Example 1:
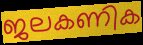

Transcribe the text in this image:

ജലകണിക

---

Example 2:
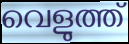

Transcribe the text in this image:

വെളുത്ത്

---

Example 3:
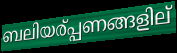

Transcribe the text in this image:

ബലിയര്പ്പണങ്ങളില്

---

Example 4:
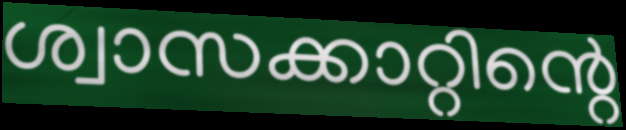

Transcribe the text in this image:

ശ്വാസക്കാറ്റിന്റെ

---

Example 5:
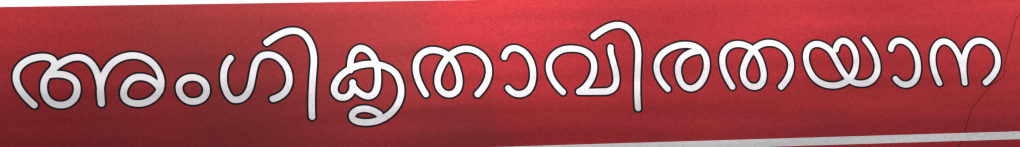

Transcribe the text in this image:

അംഗികൃതാവിരതയാന